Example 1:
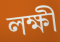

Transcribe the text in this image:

লক্ষী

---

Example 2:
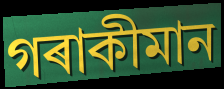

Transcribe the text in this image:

গৰাকীমান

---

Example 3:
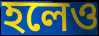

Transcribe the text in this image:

হলেও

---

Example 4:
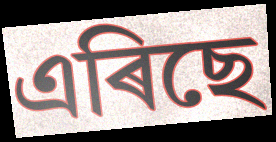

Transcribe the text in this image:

এৰিছে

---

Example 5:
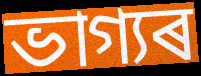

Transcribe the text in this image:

ভাগ্যৰ